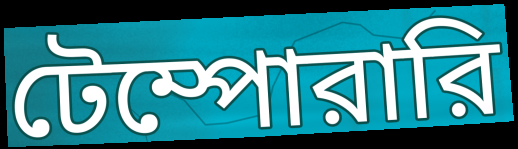
টেম্পোরারি